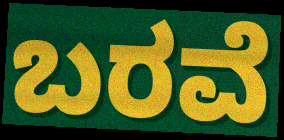
ಬರವೆ